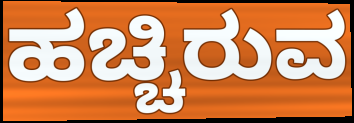
ಹಚ್ಚಿರುವ